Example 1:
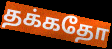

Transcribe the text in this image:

தக்கதோ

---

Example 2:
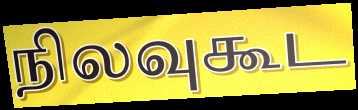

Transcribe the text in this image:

நிலவுகூட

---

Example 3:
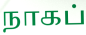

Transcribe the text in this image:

நாகப்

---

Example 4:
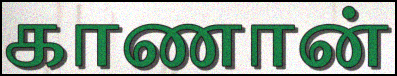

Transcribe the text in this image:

காணான்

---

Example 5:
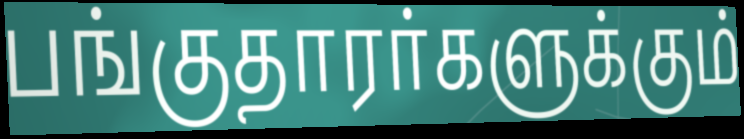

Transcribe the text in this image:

பங்குதாரர்களுக்கும்